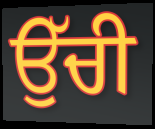
ਉੱਚੀ